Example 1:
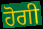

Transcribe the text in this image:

ਹੋਗੀ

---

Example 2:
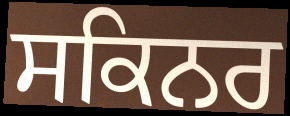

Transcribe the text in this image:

ਸਕਿਨਰ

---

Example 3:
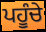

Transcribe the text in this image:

ਪਹੂੰਚੇ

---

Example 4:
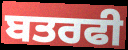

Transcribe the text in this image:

ਬਤਰਫੀ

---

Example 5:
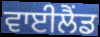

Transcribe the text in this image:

ਵਾਈਲੈਂਡ